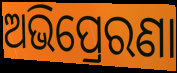
ଅଭିପ୍ରେରଣା